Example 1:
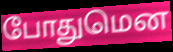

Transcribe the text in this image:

போதுமென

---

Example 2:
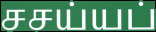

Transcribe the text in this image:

சசய்யப்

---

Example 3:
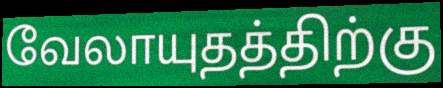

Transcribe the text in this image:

வேலாயுதத்திற்கு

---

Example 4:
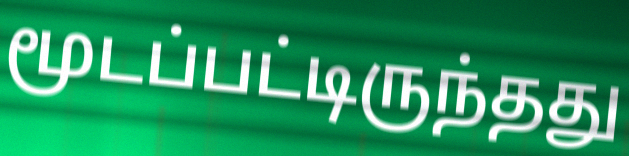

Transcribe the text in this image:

மூடப்பட்டிருந்தது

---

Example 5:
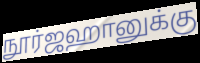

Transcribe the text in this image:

நூர்ஜஹானுக்கு